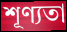
শূণ্যতা